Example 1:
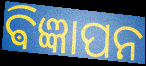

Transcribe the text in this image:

ଵିଜ୍ଞାପନ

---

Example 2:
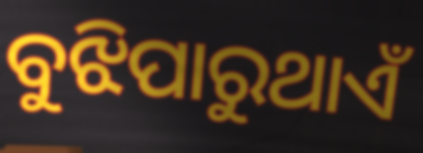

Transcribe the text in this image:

ବୁଝିପାରୁଥାଏଁ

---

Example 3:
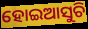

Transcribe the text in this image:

ହୋଇଆସୁଚି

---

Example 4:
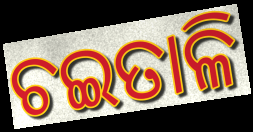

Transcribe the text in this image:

ଚଇତାଳି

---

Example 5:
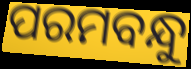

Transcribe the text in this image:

ପରମବନ୍ଧୁ